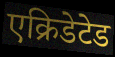
एक्रिडेटेड